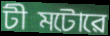
টীমটোৱে